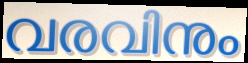
വരവിനും